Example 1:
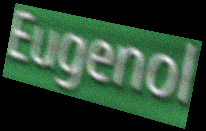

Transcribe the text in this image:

Eugenol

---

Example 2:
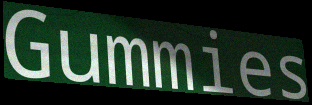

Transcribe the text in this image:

Gummies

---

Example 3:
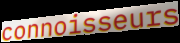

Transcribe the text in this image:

connoisseurs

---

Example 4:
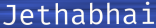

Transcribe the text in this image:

Jethabhai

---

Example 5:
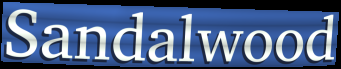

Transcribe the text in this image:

Sandalwood